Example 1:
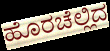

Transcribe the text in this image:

ಹೊರಚೆಲ್ಲಿದ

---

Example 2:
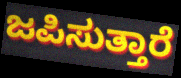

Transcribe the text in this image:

ಜಪಿಸುತ್ತಾರೆ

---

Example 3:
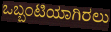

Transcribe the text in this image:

ಒಬ್ಬಂಟಿಯಾಗಿರಲು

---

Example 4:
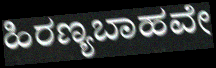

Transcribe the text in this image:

ಹಿರಣ್ಯಬಾಹವೇ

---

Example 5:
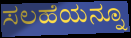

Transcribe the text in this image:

ಸಲಹೆಯನ್ನೂ